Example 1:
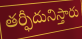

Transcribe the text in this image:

తర్ఫీదునిస్తారు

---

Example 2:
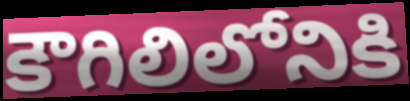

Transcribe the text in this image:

కౌగిలిలోనికి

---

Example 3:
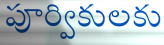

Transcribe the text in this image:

పూర్వికులకు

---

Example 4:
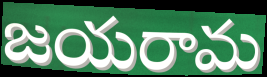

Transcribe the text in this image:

జయరామ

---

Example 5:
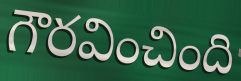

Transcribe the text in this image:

గౌరవించింది